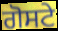
ਗੋਸਟੇ